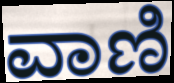
ವಾಣಿ